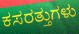
ಕಸರತ್ತುಗಳು